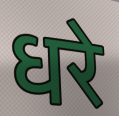
धरे